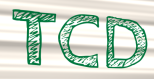
TCD